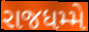
રાજધમ્મે